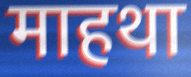
माहथा